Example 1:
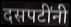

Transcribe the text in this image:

दसपटींनी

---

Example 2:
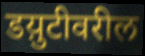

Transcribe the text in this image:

डय़ुटीवरील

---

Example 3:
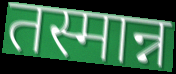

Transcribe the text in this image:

तस्मान्न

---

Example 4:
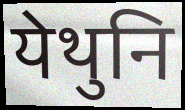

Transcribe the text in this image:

येथुनि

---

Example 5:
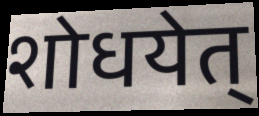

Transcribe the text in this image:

शोधयेत्